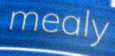
mealy